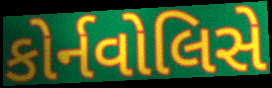
કોર્નવોલિસે